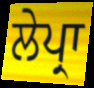
ਲੇਪ੍ਰਾ